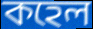
কহেল